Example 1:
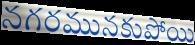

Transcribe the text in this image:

నగరమునకుపోయి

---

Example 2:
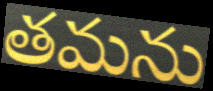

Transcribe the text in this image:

తమను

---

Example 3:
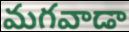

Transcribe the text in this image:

మగవాడా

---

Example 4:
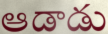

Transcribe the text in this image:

ఆడాడు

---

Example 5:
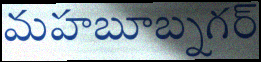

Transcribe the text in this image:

మహబూబ్నగర్